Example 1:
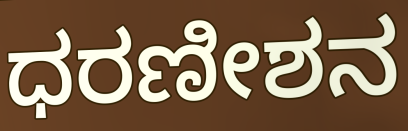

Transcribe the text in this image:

ಧರಣೀಶನ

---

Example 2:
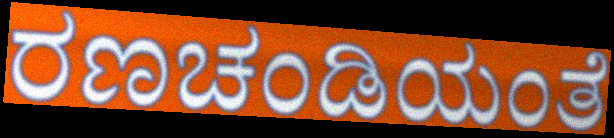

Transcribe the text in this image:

ರಣಚಂಡಿಯಂತೆ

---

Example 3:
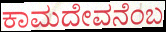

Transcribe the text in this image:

ಕಾಮದೇವನೆಂಬ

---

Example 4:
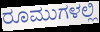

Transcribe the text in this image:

ರೂಮುಗಳಲ್ಲಿ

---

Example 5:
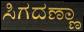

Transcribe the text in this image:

ಸಿಗದಣ್ಣಾ